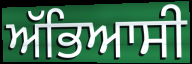
ਅੱਭਿਆਸੀ